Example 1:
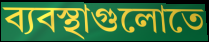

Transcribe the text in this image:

ব্যবস্থাগুলোতে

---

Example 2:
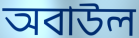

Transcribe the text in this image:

অবাউল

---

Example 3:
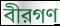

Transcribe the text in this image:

বীরগণ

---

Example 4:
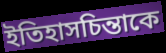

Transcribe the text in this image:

ইতিহাসচিন্তাকে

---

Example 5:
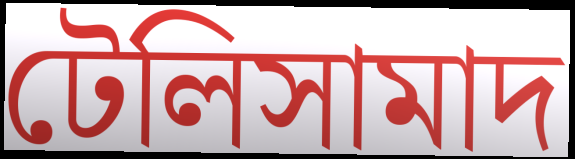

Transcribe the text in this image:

টেলিসামাদ